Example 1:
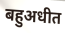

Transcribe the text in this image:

बहुअधीत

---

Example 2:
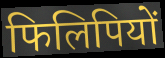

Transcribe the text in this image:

फिलिपियों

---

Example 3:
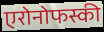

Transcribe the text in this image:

एरोनोफस्की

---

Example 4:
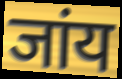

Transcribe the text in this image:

जांय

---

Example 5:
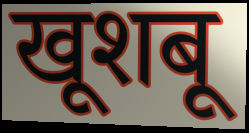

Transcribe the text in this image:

खूशबू